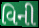
વિની